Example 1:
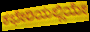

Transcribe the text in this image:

ಕಛೇರಿಯಲ್ಲಿಯೇ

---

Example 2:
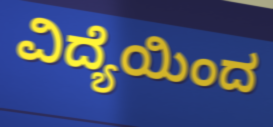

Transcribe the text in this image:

ವಿದ್ಯೆಯಿಂದ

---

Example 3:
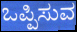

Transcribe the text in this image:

ಒಪ್ಪಿಸುವ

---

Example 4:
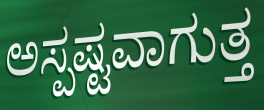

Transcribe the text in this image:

ಅಸ್ಪಷ್ಟವಾಗುತ್ತ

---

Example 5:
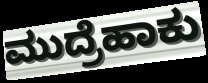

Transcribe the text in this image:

ಮುದ್ರೆಹಾಕು